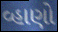
વ્હાણો